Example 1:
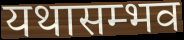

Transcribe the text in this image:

यथासम्भव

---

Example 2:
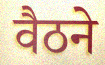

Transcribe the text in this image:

वैठने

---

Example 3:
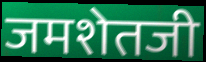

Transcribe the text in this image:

जमशेतजी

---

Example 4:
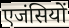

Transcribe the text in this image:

एजंसियों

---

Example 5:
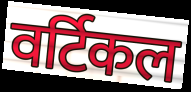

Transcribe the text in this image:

वर्टिकल